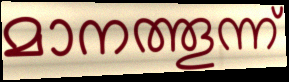
മാനത്തൂന്ന്